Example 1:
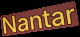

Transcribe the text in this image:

Nantar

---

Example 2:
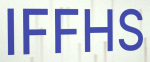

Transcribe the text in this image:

IFFHS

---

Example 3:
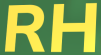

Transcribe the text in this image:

RH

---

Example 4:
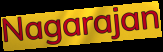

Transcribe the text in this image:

Nagarajan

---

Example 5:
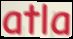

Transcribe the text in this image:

atla